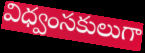
విధ్వంసకులుగా